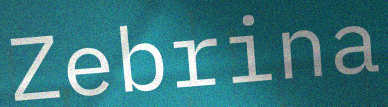
Zebrina